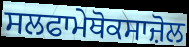
ਸਲਫਾਮੇਥੋਕਸਾਜ਼ੋਲ